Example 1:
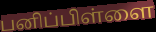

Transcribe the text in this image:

பனிப்பிள்ளை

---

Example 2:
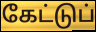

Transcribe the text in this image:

கேட்டுப்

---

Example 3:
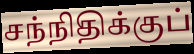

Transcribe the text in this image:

சந்நிதிக்குப்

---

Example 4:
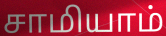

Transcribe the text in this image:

சாமியாம்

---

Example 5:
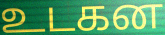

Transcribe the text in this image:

உடகன